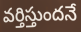
వర్తిస్తుందనే